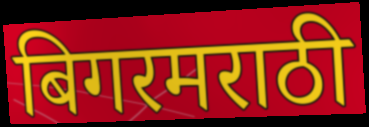
बिगरमराठी